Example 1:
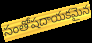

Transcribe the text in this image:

సంతోషదాయకమైన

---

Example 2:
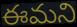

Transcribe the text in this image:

ఈమని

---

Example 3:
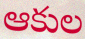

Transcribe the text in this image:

ఆకుల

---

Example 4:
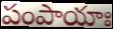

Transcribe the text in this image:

పంపాయాః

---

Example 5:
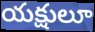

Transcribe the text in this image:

యక్షులూ